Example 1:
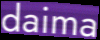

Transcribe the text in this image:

daima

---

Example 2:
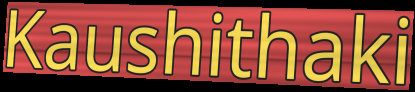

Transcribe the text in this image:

Kaushithaki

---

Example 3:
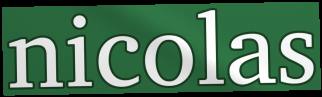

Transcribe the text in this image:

nicolas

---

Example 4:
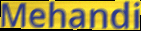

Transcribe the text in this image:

Mehandi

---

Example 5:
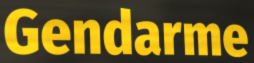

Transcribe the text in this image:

Gendarme